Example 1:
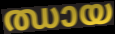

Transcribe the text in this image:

ഝായ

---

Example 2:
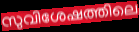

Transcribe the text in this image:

സുവിശേഷത്തിലെ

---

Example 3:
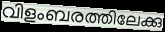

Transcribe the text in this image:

വിളംബരത്തിലേക്കു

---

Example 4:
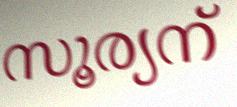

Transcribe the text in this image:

സൂര്യന്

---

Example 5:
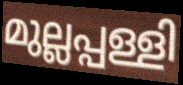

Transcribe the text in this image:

മുല്ലപ്പള്ളി